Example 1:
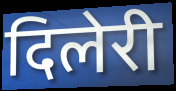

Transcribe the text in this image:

दिलेरी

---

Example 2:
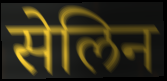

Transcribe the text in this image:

सेलिन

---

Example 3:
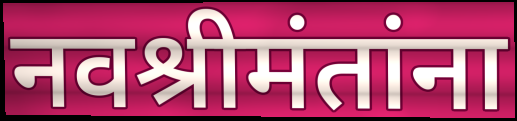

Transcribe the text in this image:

नवश्रीमंतांना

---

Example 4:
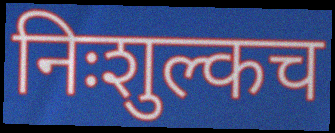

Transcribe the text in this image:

निःशुल्कच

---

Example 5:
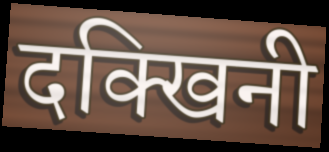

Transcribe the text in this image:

दक्खिनी